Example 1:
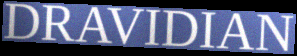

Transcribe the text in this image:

DRAVIDIAN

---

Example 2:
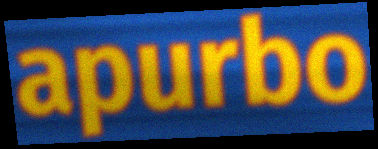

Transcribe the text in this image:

apurbo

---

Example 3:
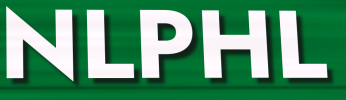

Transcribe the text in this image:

NLPHL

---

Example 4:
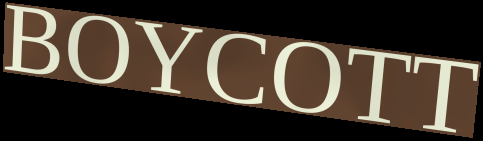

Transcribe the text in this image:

BOYCOTT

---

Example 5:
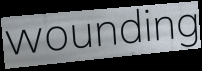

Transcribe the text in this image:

wounding